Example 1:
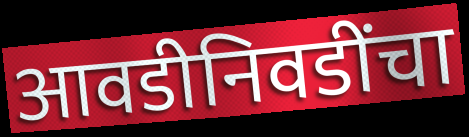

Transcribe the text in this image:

आवडीनिवडींचा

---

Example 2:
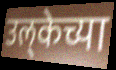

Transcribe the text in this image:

उल्केच्या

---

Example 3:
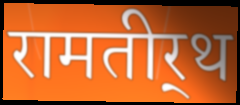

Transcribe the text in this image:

रामतीर्थ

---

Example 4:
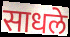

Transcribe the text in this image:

साधले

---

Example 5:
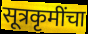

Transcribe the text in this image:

सूत्रकृमींचा